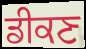
ਡੀਕਣ